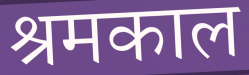
श्रमकाल